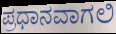
ಪ್ರಧಾನವಾಗಲಿ